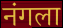
नंगला